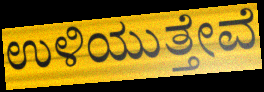
ಉಳಿಯುತ್ತೇವೆ